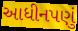
આધીનપણું